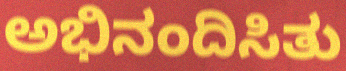
ಅಭಿನಂದಿಸಿತು